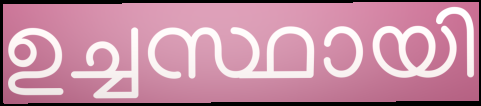
ഉച്ചസ്ഥായി